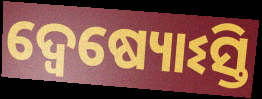
ଦ୍ୱେଷ୍ୟୋଽସ୍ତି